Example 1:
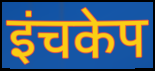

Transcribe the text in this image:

इंचकेप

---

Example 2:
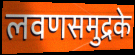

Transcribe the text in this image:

लवणसमुद्रके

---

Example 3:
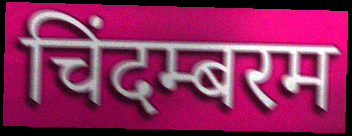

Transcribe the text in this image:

चिंदम्बरम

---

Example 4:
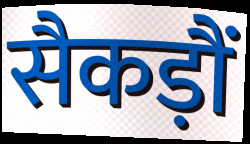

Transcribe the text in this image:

सैकड़ौं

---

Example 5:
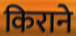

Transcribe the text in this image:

किराने